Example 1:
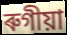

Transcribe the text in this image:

ৰুগীয়া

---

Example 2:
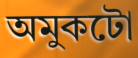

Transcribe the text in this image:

অমুকটো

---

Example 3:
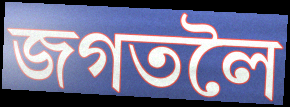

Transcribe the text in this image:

জগতলৈ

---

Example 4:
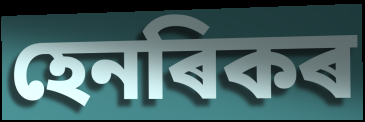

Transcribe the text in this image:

হেনৰিকৰ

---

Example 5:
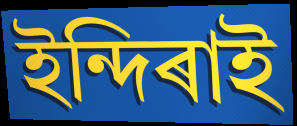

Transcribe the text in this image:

ইন্দিৰাই